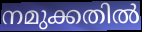
നമുക്കതിൽ